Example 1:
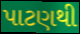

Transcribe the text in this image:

પાટણથી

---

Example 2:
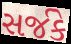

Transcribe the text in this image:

સર્જકે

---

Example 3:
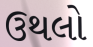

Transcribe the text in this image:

ઉથલો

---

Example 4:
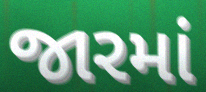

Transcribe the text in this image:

જારમાં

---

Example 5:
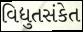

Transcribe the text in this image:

વિદ્યુતસંકેત